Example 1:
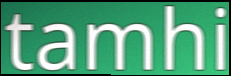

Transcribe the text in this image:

tamhi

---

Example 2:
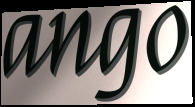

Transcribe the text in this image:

ango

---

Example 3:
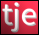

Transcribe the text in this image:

tje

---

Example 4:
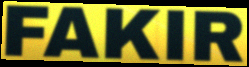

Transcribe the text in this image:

FAKIR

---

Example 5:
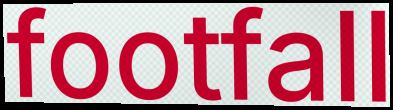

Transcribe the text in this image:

footfall